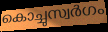
കൊച്ചുസ്വർഗം